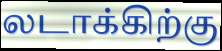
லடாக்கிற்கு